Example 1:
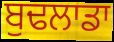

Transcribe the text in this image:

ਬੁਢਲਾਡਾ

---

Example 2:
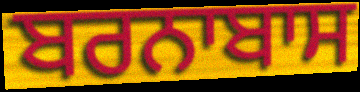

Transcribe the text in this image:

ਬਰਨਾਬਾਸ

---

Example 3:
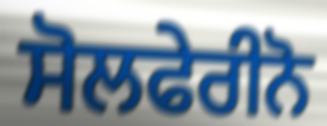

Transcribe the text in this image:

ਸੋਲਫੇਰੀਨੋ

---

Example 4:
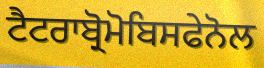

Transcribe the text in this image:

ਟੈਟਰਾਬ੍ਰੋਮੋਬਿਸਫੇਨੋਲ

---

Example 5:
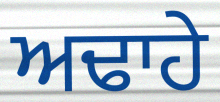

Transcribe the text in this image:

ਅਢਾਹੇ